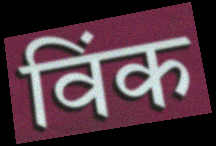
विंक